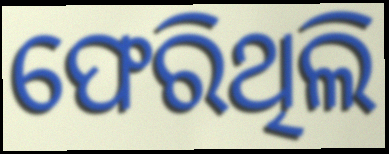
ଫେରିଥିଲି